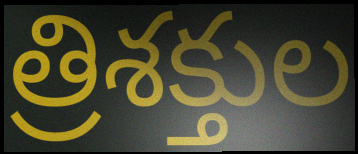
త్రిశక్తుల